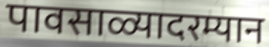
पावसाळ्यादरम्यान